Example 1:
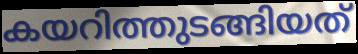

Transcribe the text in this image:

കയറിത്തുടങ്ങിയത്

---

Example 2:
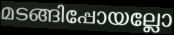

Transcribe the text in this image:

മടങ്ങിപ്പോയല്ലോ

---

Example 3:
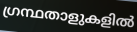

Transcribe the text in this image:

ഗ്രന്ഥതാളുകളിൽ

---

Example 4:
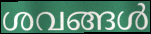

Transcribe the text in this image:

ശവങ്ങൾ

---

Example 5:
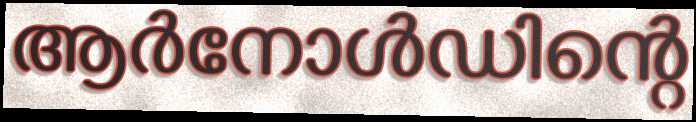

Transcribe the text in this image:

ആർനോൾഡിന്റെ